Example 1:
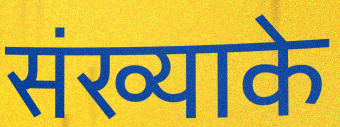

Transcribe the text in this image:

संख्याके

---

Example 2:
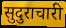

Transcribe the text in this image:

सुदुराचारी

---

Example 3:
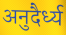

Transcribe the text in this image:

अनुदैर्ध्य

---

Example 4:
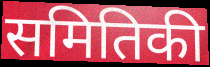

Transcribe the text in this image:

समितिकी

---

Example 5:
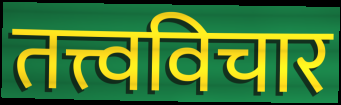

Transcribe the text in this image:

तत्त्वविचार